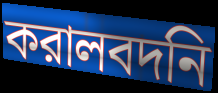
করালবদনি